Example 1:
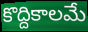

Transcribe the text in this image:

కొద్దికాలమే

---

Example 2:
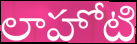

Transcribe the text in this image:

లాహోటి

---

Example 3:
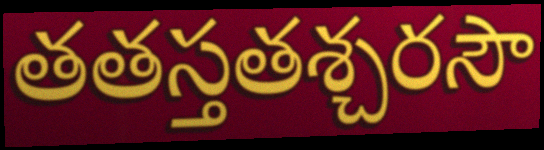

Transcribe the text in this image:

తతస్తతశ్చరసౌ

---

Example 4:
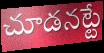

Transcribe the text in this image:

చూడనట్టే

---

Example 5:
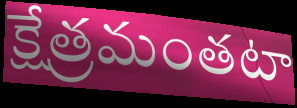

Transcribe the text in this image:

క్షేత్రమంతటా